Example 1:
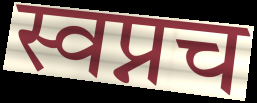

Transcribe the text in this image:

स्वप्नच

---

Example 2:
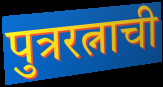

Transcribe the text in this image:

पुत्ररत्नाची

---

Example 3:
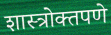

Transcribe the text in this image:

शास्त्रोक्तपणे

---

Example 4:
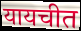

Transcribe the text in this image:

यायचीत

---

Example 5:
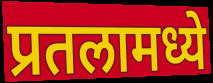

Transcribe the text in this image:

प्रतलामध्ये